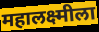
महालक्ष्मीला